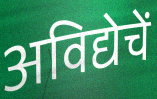
अविद्येचें